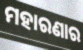
ମହାରଣାର